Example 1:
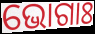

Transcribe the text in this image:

ଭୋଗାଃ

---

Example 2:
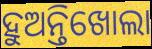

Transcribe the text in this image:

ହୁଅନ୍ତିଖୋଲା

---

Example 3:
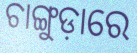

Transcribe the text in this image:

ଚାଙ୍ଗୁଡ଼ାରେ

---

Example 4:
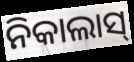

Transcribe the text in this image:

ନିକାଲାସ୍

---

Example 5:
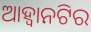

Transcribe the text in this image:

ଆହ୍ଵାନଟିର